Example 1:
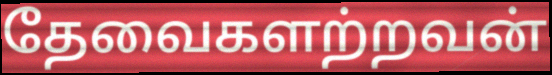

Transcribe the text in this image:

தேவைகளற்றவன்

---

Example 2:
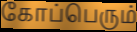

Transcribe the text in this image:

கோப்பெரும்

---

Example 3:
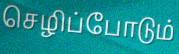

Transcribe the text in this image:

செழிப்போடும்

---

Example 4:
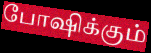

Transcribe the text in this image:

போஷிக்கும்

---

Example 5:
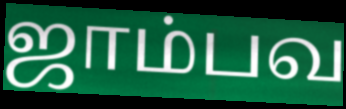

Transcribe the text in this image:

ஜாம்பவ